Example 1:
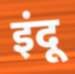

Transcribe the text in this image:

इंदू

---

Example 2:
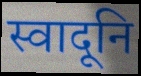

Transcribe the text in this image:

स्वादूनि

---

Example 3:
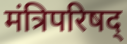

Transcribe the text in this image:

मंत्रिपरिषद्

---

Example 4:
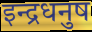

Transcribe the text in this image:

इन्‍द्रधनुष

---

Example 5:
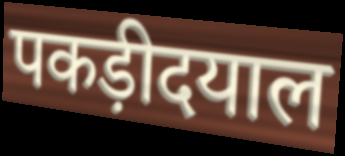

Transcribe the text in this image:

पकड़ीदयाल